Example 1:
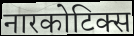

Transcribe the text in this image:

नारकोटिक्स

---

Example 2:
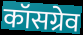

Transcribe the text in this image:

कॉसग्रेव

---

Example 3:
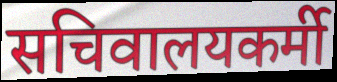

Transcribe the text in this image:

सचिवालयकर्मी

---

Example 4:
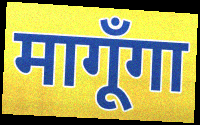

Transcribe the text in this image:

मागूँगा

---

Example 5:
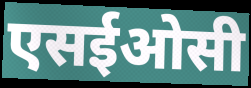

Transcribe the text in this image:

एसईओसी